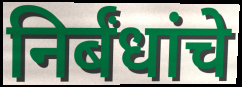
निर्बंधांचे